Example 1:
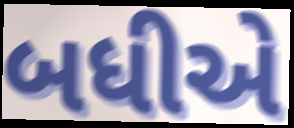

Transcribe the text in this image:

બધીએ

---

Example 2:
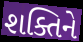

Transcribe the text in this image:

શક્તિને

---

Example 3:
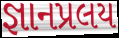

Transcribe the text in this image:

જ્ઞાનપ્રલય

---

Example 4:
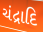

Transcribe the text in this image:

ચંદ્રાદિ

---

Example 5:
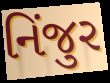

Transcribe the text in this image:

નિંજુર